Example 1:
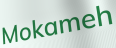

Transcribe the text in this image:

Mokameh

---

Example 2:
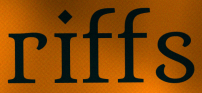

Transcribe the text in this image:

riffs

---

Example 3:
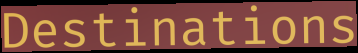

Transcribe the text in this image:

Destinations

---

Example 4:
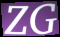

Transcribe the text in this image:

ZG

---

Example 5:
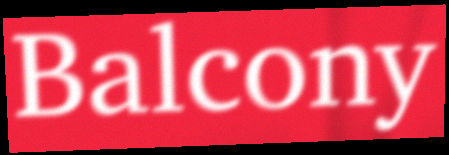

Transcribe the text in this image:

Balcony